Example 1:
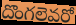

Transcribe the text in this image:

దొంగలెవరో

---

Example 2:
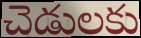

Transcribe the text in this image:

చెడులకు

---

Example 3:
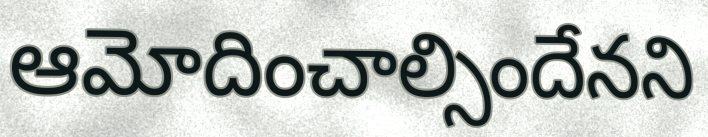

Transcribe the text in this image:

ఆమోదించాల్సిందేనని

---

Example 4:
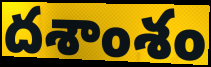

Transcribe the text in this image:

దశాంశం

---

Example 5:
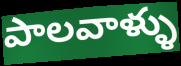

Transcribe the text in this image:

పాలవాళ్ళు